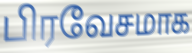
பிரவேசமாக